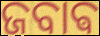
ଜବାଵ